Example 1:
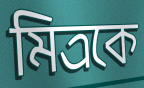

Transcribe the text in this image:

মিত্রকে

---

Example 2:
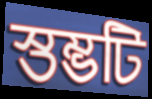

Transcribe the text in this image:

স্তম্ভটি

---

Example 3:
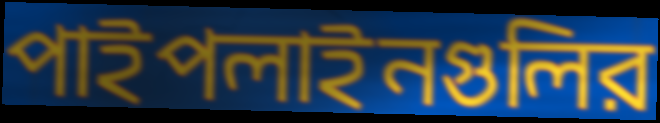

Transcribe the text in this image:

পাইপলাইনগুলির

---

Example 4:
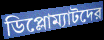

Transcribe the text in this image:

ডিপ্লোম্যাটদের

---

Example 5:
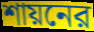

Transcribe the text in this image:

শায়নের